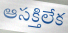
ఆసక్తిలేక